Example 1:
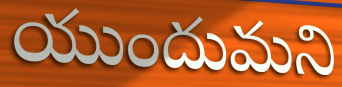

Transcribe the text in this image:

యుందుమని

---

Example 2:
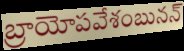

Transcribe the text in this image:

బ్రాయోపవేశంబునన్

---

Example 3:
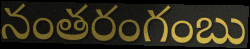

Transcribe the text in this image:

నంతరంగంబు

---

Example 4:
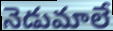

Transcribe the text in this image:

నెడుమాలే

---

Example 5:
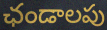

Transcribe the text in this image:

ఛండాలపు